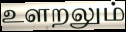
உளறலும்